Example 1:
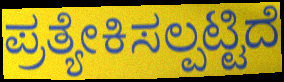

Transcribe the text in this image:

ಪ್ರತ್ಯೇಕಿಸಲ್ಪಟ್ಟಿದೆ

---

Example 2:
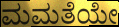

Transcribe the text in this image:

ಮಮತೆಯೇ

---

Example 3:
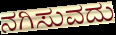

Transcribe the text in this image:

ನಗಿಸುವದು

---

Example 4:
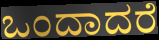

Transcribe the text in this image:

ಒಂದಾದರೆ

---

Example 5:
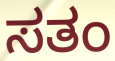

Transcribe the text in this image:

ಸತಂ